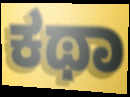
ಕಥಾ